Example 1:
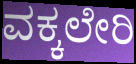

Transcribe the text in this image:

ವಕ್ಕಲೇರಿ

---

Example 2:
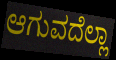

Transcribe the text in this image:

ಆಗುವದೆಲ್ಲಾ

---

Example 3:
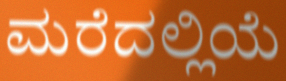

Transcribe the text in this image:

ಮರೆದಲ್ಲಿಯೆ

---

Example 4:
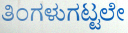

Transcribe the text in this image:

ತಿಂಗಳುಗಟ್ಟಲೇ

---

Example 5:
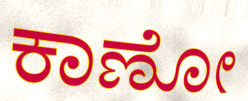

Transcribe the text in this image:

ಕಾಣೋ